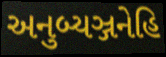
અનુબ્યઞ્જનેહિ